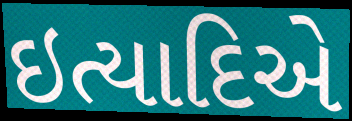
ઇત્યાદિએ